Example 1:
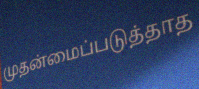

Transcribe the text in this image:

முதன்மைப்படுத்தாத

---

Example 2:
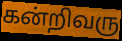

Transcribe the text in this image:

கன்றிவரு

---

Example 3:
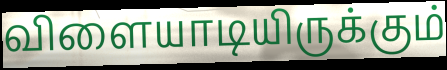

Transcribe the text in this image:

விளையாடியிருக்கும்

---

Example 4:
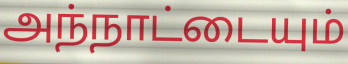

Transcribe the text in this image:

அந்நாட்டையும்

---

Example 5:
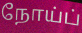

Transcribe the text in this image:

நோய்ப்